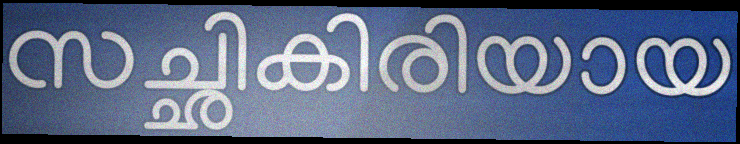
സച്ഛികിരിയായ